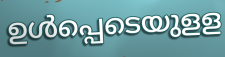
ഉൾപ്പെടെയുളള